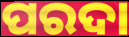
ପରଦା